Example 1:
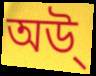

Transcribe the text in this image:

অউ্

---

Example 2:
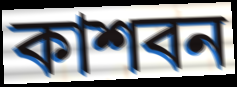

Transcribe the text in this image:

কাশবন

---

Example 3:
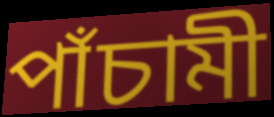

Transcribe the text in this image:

পাঁচামী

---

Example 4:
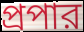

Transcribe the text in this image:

প্রপার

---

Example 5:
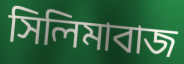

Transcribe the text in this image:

সিলিমাবাজ